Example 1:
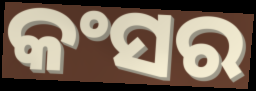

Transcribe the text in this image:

କଂସର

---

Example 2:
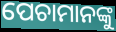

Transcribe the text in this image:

ପେଚାମାନଙ୍କୁ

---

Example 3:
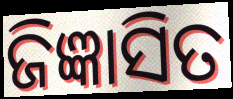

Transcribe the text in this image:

ଜିଜ୍ଞାସିତ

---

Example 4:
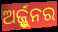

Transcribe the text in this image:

ଅର୍ଜ୍ଜୁନର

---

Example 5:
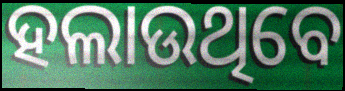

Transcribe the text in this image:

ହଲାଉଥିବେ